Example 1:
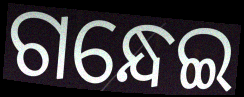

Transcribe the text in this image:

ଗନ୍ଧେଇ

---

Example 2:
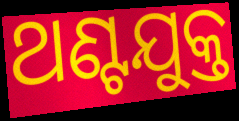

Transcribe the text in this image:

ଥଣ୍ଟଯୁକ୍ତ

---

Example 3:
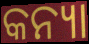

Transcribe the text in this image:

କନ୍ୟା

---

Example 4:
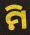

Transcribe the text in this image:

ମି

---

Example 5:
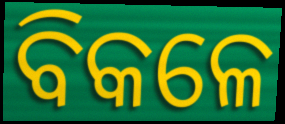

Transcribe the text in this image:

ବିକଳେ